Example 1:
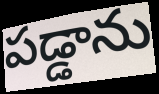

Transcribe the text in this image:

పడ్డాను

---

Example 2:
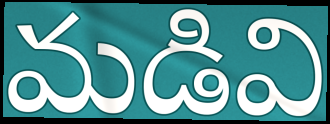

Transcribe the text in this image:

మడివి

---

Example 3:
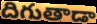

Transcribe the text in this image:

దిగుతాడా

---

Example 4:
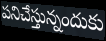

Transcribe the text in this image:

పనిచేస్తున్నందుకు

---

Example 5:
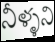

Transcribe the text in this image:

నీళ్ళని